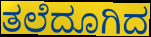
ತಲೆದೂಗಿದ